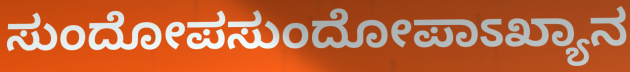
ಸುಂದೋಪಸುಂದೋಪಾಽಖ್ಯಾನ